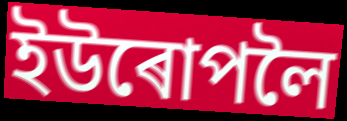
ইউৰোপলৈ